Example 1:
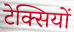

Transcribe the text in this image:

टेक्सियों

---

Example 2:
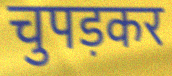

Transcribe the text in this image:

चुपड़कर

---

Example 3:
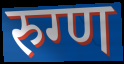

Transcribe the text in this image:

रुग्ण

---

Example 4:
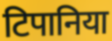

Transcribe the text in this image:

टिपानिया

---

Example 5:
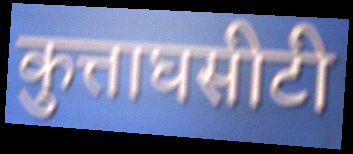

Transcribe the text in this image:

कुत्ताघसीटी